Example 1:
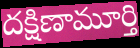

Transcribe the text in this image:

దక్షిణామూర్తి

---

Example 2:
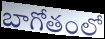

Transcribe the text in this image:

బాగోతంలో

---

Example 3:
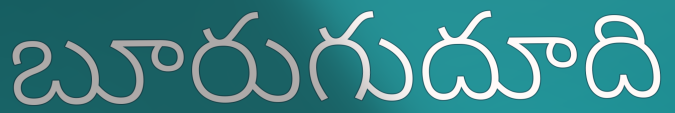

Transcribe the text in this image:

బూరుగుదూది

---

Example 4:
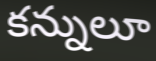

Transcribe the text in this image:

కన్నులూ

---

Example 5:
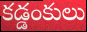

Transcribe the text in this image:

కడ్డంకులు